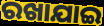
ରଖାଯାଇ